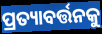
ପ୍ରତ୍ୟାବର୍ତ୍ତନକୁ